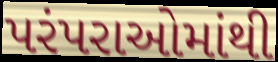
પરંપરાઓમાંથી